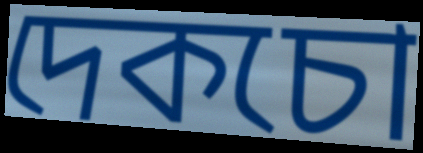
দেকচো